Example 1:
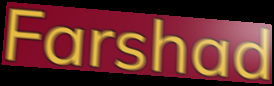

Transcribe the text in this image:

Farshad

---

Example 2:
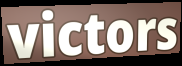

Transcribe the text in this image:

victors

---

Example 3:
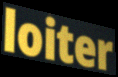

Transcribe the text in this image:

loiter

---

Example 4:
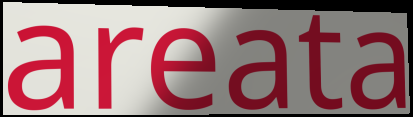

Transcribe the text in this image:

areata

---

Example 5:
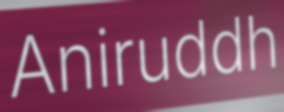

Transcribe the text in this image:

Aniruddh